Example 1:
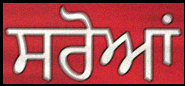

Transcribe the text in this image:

ਸਰੋਆਂ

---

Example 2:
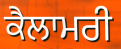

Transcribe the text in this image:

ਕੈਲਾਮਰੀ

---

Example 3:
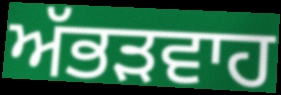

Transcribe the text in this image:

ਅੱਭੜਵਾਹ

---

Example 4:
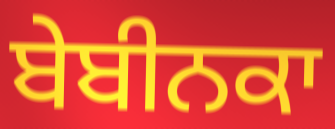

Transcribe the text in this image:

ਬੇਬੀਨਕਾ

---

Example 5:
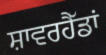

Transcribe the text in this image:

ਸ਼ਾਵਰਹੈੱਡਾਂ